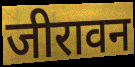
जीरावन